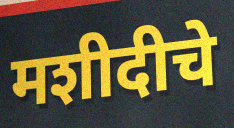
मशीदीचे